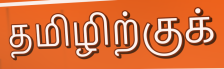
தமிழிற்குக்